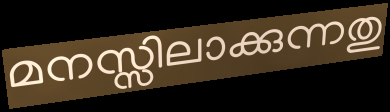
മനസ്സിലാക്കുന്നതു